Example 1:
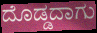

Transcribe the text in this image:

ದೊಡ್ಡದಾಗು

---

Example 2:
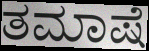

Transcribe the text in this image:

ತಮಾಷೆ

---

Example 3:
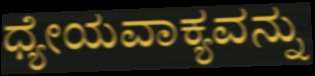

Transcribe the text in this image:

ಧ್ಯೇಯವಾಕ್ಯವನ್ನು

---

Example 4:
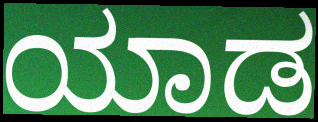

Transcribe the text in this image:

ಯಾಡ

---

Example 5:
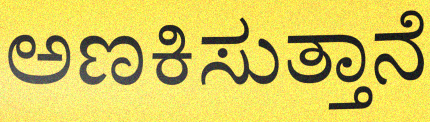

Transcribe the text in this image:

ಅಣಕಿಸುತ್ತಾನೆ